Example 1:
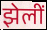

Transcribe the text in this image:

झेलीं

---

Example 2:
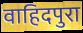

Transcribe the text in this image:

वाहिदपुरा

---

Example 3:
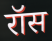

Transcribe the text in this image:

रॉस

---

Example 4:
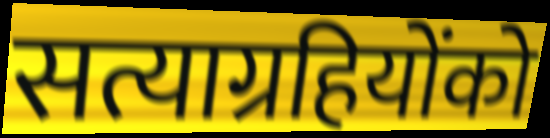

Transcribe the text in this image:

सत्याग्रहियोंको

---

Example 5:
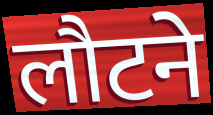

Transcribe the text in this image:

लौटने